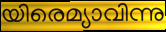
യിരെമ്യാവിന്നു